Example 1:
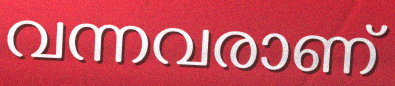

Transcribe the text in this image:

വന്നവരാണ്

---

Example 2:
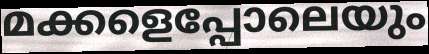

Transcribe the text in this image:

മക്കളെപ്പോലെയും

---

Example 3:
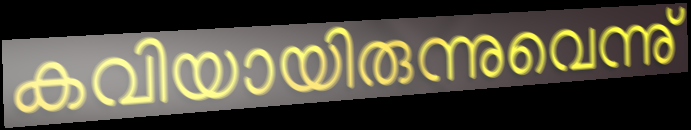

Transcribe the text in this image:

കവിയായിരുന്നുവെന്നു്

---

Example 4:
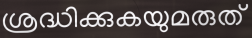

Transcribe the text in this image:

ശ്രദ്ധിക്കുകയുമരുത്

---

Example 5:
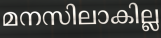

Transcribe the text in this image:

മനസിലാകില്ല